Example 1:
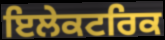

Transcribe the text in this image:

ਇਲੇਕਟਰਿਕ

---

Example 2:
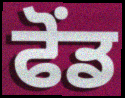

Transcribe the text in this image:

ਫੋਂਡ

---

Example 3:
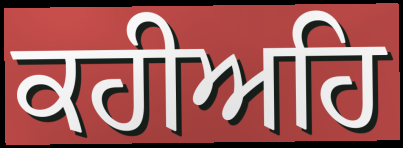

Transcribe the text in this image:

ਕਹੀਅਹਿ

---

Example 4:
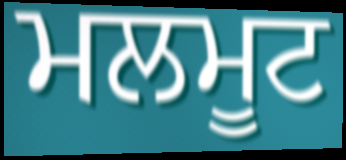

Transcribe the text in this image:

ਮਲਮੂਟ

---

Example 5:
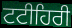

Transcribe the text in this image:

ਟਟੀਹਿਰੀ